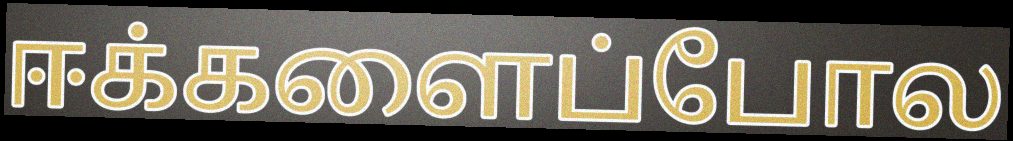
ஈக்களைப்போல